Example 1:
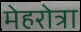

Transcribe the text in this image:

मेहरोत्रा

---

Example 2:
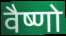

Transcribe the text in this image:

वैष्णो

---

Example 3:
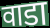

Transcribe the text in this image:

वाडा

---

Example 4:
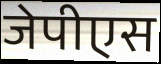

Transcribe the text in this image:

जेपीएस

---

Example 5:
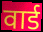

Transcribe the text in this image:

वार्ड